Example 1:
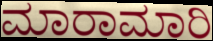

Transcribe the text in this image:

ಮಾರಾಮಾರಿ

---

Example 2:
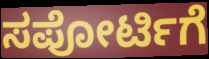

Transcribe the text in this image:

ಸಪೋರ್ಟಿಗೆ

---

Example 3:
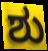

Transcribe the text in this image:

ಶು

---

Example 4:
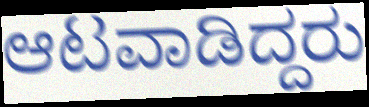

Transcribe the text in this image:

ಆಟವಾಡಿದ್ದರು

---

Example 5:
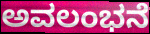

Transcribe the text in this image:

ಅವಲಂಭನೆ